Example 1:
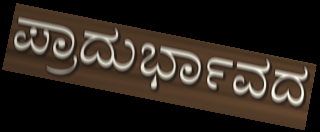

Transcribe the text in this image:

ಪ್ರಾದುರ್ಭಾವದ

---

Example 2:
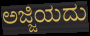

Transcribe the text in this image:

ಅಜ್ಜಿಯದು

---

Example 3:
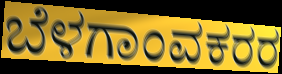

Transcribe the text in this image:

ಬೆಳಗಾಂವಕರರ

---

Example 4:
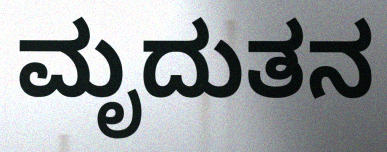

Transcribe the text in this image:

ಮೃದುತನ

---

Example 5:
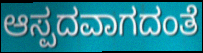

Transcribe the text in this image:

ಆಸ್ಪದವಾಗದಂತೆ